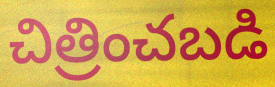
చిత్రించబడి